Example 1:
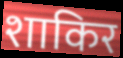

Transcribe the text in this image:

शाकिर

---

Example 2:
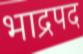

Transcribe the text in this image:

भाद्रपद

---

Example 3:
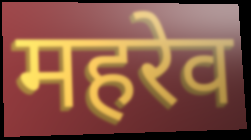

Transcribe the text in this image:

महरेव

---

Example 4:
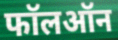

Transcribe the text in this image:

फॉलऑन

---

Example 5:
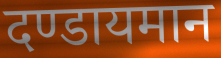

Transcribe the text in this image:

दण्डायमान